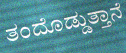
ತಂದೊಡ್ಡುತ್ತಾನೆ